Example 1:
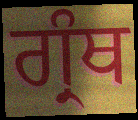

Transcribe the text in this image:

ਗ੍ਰੰਥ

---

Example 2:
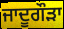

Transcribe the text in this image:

ਜਾਦੂਗੌੜਾ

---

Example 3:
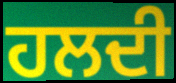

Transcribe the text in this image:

ਹਲਦੀ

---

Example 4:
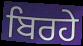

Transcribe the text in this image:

ਬਿਰਹੇ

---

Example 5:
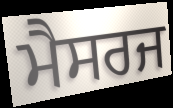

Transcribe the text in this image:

ਮੈਸਰਜ